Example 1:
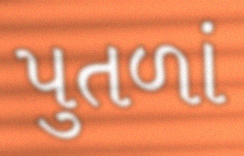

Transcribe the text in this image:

પુતળાં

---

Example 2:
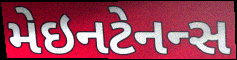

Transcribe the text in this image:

મેઇનટેનન્સ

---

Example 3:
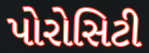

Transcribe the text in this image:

પોરોસિટી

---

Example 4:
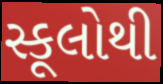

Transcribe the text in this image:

સ્કૂલોથી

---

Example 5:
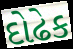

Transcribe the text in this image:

દોઢેક